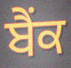
ਬੈਂਕ